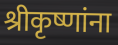
श्रीकृष्णांना